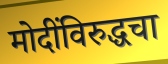
मोदींविरुद्धचा